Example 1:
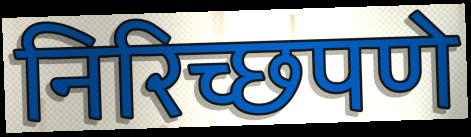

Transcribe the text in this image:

निरिच्छपणे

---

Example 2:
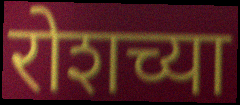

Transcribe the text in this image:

रोशच्या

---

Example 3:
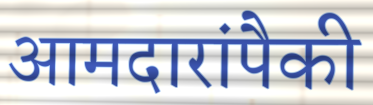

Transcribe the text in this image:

आमदारांपैकी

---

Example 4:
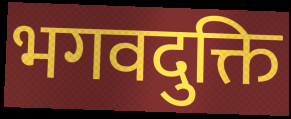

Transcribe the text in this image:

भगवदुक्ति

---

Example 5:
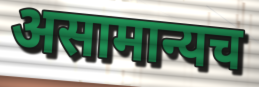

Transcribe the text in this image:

असामान्यच